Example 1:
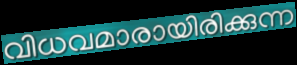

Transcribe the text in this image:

വിധവമാരായിരിക്കുന്ന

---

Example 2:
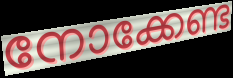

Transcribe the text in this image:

നോക്കേണ്ട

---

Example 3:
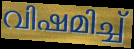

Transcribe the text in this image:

വിഷമിച്ച്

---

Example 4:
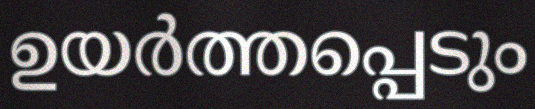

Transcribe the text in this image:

ഉയർത്തപ്പെടും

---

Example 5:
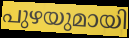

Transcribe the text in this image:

പുഴയുമായി